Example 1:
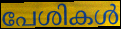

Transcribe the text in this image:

പേശികൾ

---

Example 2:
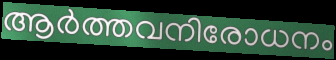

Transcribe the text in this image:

ആർത്തവനിരോധനം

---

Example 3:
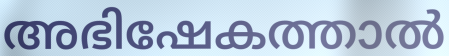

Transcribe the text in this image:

അഭിഷേകത്താൽ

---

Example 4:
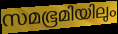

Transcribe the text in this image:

സമഭൂമിയിലും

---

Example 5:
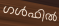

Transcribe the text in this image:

ഗൾഫിൽ